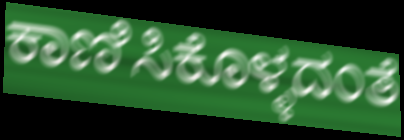
ಕಾಣಿಸಿಕೊಳ್ಳದಂತೆ